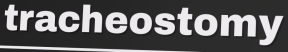
tracheostomy